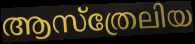
ആസ്ത്രേലിയ